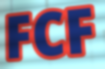
FCF